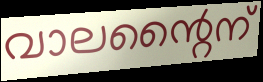
വാലന്റൈന്